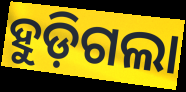
ହୁଡ଼ିଗଲା